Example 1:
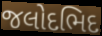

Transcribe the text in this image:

જલોદભિદ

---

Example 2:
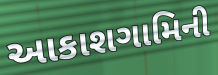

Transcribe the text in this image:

આકાશગામિની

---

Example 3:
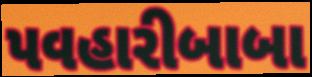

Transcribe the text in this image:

પવહારીબાબા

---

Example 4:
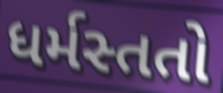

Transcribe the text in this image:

ધર્મસ્તતો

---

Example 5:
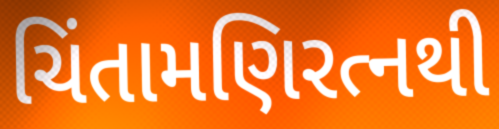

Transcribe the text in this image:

ચિંતામણિરત્નથી